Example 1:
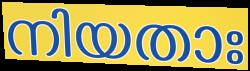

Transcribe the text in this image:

നിയതാഃ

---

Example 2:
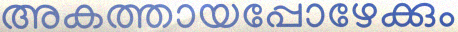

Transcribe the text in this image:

അകത്തായപ്പോഴേക്കും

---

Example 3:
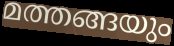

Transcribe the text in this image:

മത്തങ്ങയും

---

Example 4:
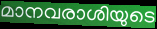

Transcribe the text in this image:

മാനവരാശിയുടെ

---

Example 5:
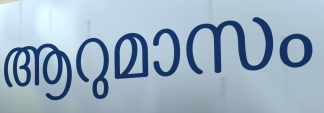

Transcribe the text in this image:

ആറുമാസം